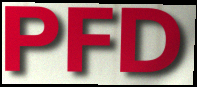
PFD